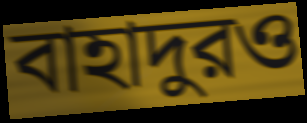
বাহাদুরও